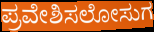
ಪ್ರವೇಶಿಸಲೋಸುಗ